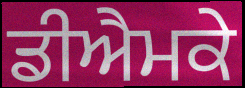
ਡੀਐਮਕੇ